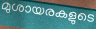
മുശായരകളുടെ